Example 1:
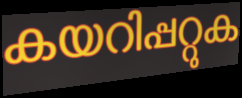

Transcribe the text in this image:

കയറിപ്പറ്റുക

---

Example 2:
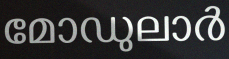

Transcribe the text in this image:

മോഡുലാർ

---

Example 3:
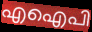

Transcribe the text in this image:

എഐപി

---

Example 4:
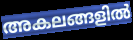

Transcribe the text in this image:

അകലങ്ങളിൽ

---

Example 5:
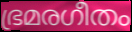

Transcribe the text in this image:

ഭ്രമരഗീതം